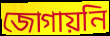
জোগায়নি